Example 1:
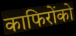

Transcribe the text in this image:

काफिरोंको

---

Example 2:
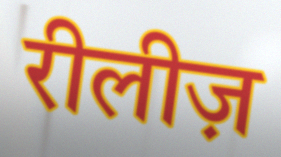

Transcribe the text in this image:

रीलीज़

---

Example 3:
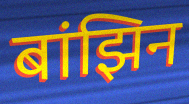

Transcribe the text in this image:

बांझिन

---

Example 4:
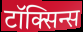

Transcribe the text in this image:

टॉक्सिन्स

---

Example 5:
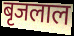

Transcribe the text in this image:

बृजलाल